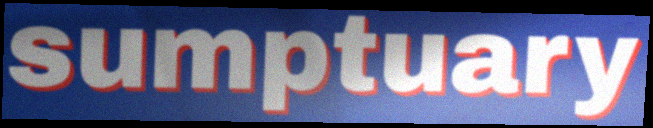
sumptuary